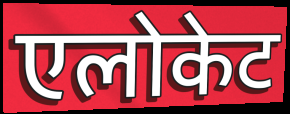
एलोकेट